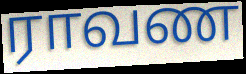
ராவண